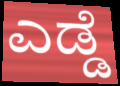
ಎಡ್ಡೆ